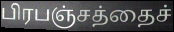
பிரபஞ்சத்தைச்